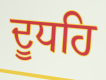
ਦੂਧਹਿ